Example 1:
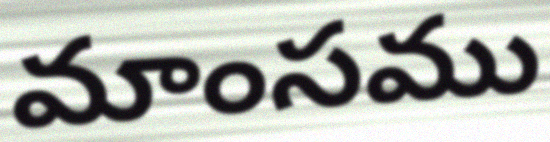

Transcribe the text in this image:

మాంసము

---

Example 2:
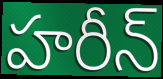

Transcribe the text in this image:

హరీన్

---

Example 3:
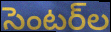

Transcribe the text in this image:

సెంటర్‌ల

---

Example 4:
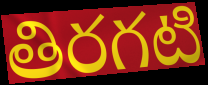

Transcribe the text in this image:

తిరగటి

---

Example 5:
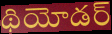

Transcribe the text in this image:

థియోడర్